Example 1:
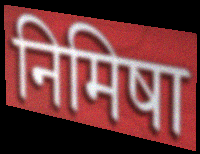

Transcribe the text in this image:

निमिषा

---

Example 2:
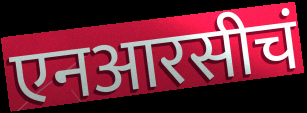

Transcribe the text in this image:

एनआरसीचं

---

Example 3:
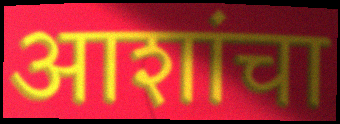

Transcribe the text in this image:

आशांचा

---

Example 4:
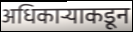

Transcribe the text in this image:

अधिकाऱ्याकडून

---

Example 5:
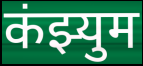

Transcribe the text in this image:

कंझ्युम